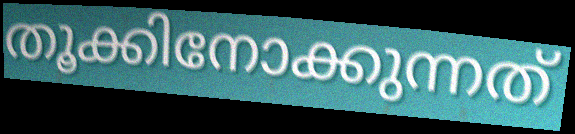
തൂക്കിനോക്കുന്നത്